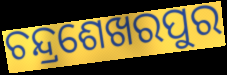
ଚନ୍ଦ୍ରଶେଖରପୁର